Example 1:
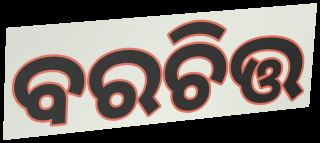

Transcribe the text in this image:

ବରଚିତ୍ତ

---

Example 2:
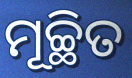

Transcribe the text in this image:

ମୂଚ୍ଛିତ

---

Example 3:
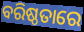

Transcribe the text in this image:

ବରିଷ୍ଠତାରେ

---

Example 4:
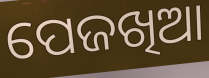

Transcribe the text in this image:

ପେଜଖିଆ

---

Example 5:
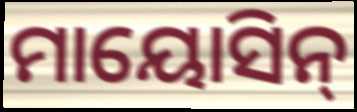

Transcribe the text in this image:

ମାୟୋସିନ୍